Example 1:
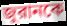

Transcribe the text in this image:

জুরানকে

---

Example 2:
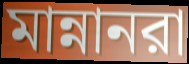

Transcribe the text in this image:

মান্নানরা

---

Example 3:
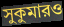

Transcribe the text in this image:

সুকুমারও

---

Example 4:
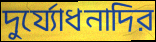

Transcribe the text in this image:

দুর্য্যোধনাদির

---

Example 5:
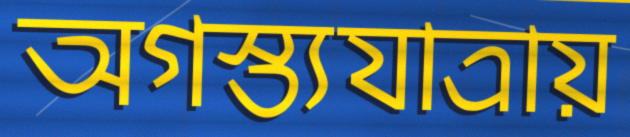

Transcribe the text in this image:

অগস্ত্যযাত্রায়